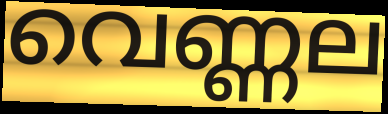
വെണ്ണല